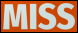
MISS